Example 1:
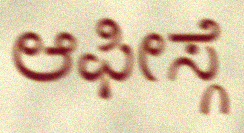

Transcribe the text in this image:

ಆಫೀಸ್ಗೆ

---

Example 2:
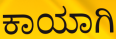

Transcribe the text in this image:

ಕಾಯಾಗಿ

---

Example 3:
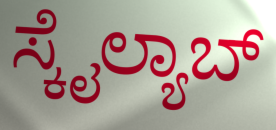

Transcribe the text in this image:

ಸ್ಕೈಲ್ಯಾಬ್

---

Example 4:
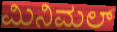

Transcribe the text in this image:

ಮಿನಿಮಲ್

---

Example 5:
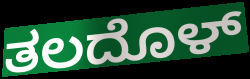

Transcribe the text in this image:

ತಲದೊಳ್